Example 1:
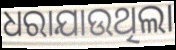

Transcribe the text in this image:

ଧରାଯାଉଥିଲା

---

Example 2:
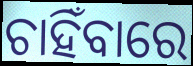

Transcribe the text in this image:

ଚାହିଁବାରେ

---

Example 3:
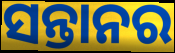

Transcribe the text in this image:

ସନ୍ତାନର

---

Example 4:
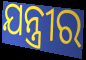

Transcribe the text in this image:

ଯନ୍ତ୍ରୀର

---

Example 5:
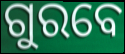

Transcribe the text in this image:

ଗୁରବେ